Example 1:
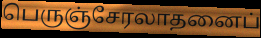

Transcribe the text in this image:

பெருஞ்சேரலாதனைப்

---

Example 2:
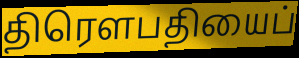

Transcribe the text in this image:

திரெளபதியைப்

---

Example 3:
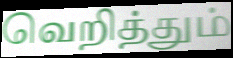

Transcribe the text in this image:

வெறித்தும்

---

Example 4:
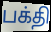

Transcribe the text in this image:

பக்தி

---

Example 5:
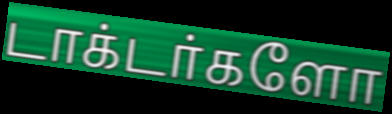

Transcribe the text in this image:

டாக்டர்களோ